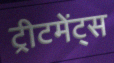
ट्रीटमेंट्स